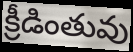
క్రీడింతువు